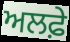
ਅਲਫ਼ੇ